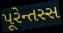
પૂરેન્તસ્સ